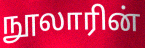
நூலாரின்